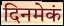
दिनमेकं